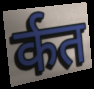
र्कत